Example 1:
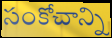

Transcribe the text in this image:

సంకోచాన్ని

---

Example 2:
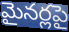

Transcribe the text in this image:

మైనర్లపై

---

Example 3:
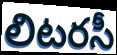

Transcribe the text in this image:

లిటరసీ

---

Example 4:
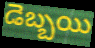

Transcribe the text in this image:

డెబ్బయి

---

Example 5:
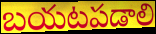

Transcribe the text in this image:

బయటపడాలి